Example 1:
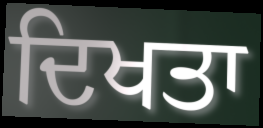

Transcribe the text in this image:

ਦਿਖਤਾ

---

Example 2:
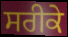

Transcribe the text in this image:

ਸਰੀਕੇ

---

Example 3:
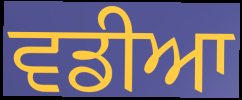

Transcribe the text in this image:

ਵਡੀਆ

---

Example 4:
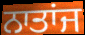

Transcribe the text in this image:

ਨਾਤਾਂਜ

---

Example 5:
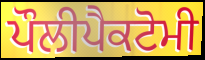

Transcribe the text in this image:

ਪੌਲੀਪੈਕਟੋਮੀ